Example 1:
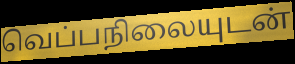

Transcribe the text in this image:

வெப்பநிலையுடன்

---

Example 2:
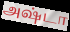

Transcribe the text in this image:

அஷ்டா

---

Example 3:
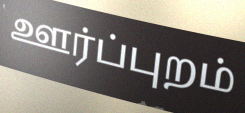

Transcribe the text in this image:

ஊர்ப்புறம்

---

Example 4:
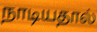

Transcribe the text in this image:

நாடியதால்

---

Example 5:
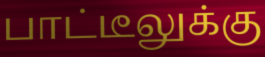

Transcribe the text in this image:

பாட்டீலுக்கு